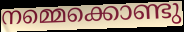
നമ്മെക്കൊണ്ടു